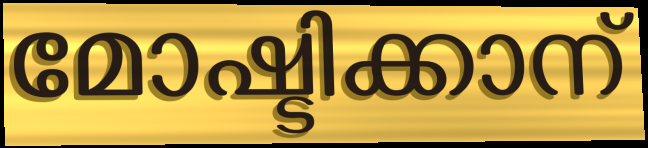
മോഷ്ടിക്കാന്